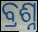
ବ୍ରଶ୍ନ